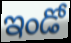
ఇండో